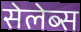
सेलेब्स